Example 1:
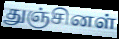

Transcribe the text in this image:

துஞ்சினள்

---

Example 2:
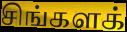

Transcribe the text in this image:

சிங்களக்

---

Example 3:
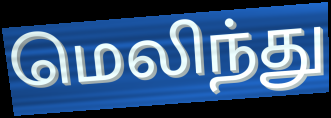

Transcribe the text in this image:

மெலிந்து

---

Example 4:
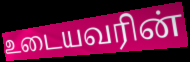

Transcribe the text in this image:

உடையவரின்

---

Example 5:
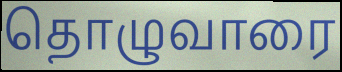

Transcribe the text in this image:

தொழுவாரை